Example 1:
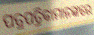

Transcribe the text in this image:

ପତ୍ରପତ୍ରିକାମାନଙ୍କରେ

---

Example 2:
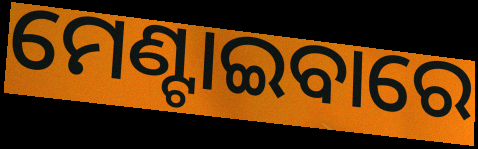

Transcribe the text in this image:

ମେଣ୍ଟାଇବାରେ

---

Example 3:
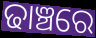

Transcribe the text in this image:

ଢାଞ୍ଚରେ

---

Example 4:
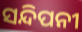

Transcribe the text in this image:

ସନ୍ଦିପନୀ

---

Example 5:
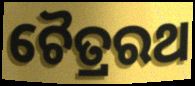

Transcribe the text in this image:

ଚୈତ୍ରରଥ